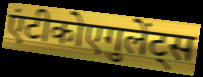
एंटीकोएगुलेंट्स